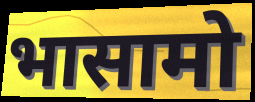
भासामो